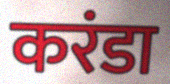
करंडा